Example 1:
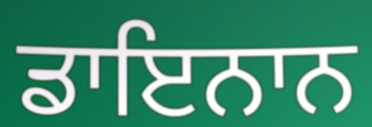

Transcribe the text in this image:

ਡਾਇਨਾਨ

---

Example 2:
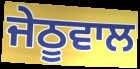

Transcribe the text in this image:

ਜੇਠੂਵਾਲ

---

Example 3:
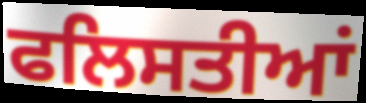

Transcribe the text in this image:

ਫਲਿਸਤੀਆਂ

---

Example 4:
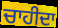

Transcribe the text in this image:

ਚਾਹੀਦਾ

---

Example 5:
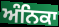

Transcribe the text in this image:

ਅੰਨਿਕਾ